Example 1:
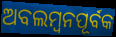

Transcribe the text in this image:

ଅବଲମ୍ୱନପୂର୍ବକ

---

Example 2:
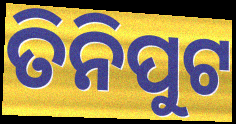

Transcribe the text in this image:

ତିନିପୁଟ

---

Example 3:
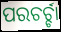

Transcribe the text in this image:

ପରଚର୍ଚ୍ଚା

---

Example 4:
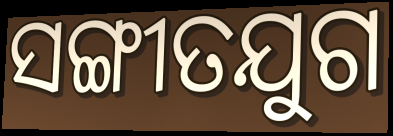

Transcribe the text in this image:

ସଙ୍ଗୀତଯୁଗ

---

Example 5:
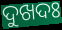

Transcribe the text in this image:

ଦୁଖଦଃ